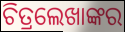
ଚିତ୍ରଲେଖାଙ୍କର